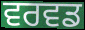
ਵਰਵਡ